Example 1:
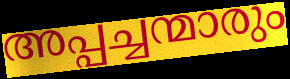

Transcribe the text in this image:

അപ്പച്ചന്മാരും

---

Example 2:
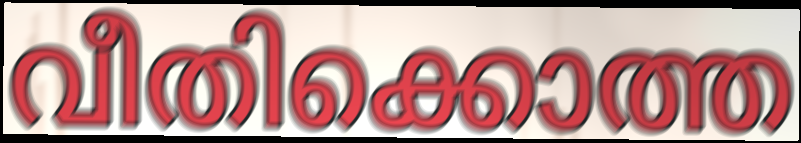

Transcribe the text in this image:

വീതിക്കൊത്ത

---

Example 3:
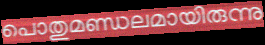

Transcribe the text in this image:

പൊതുമണ്ഡലമായിരുന്നു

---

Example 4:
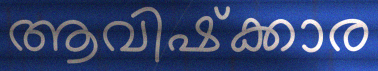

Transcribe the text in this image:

ആവിഷ്‌ക്കാര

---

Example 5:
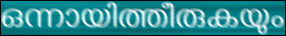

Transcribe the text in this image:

ഒന്നായിത്തീരുകയും